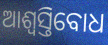
ଆଶ୍ଵସ୍ତିବୋଧ